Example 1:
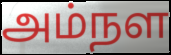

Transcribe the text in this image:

அம்நள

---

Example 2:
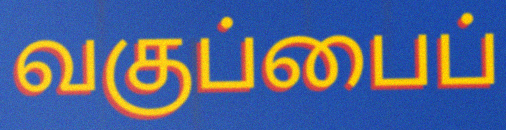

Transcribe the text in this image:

வகுப்பைப்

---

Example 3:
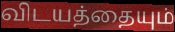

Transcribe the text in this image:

விடயத்தையும்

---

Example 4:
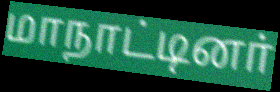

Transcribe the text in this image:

மாநாட்டினர்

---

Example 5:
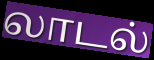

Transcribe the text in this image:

லாடல்